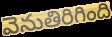
వెనుతిరిగింది